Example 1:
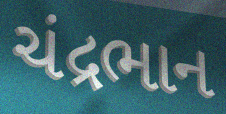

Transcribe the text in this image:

ચંદ્રભાન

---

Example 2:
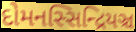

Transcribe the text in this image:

દોમનસ્સિન્દ્રિયઞ્ચ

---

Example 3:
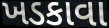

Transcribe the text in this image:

ખડકાવા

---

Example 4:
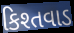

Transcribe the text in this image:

કિશ્તવાડ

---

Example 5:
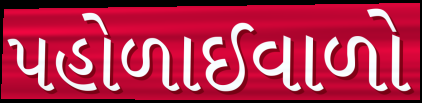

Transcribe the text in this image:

પહોળાઈવાળો